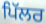
ਪਿੱਲਰ